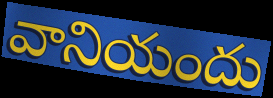
వానియందు